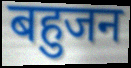
बहुजन